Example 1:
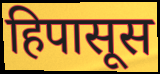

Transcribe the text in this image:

हिपासूस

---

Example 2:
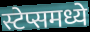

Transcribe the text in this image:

स्टेप्समध्ये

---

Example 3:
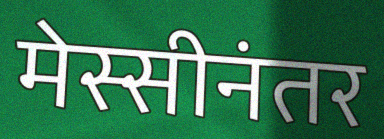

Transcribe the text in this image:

मेस्सीनंतर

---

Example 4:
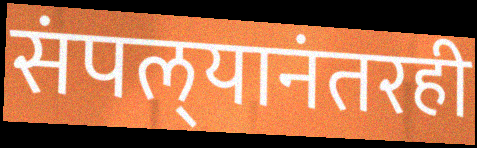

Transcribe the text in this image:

संपल्यानंतरही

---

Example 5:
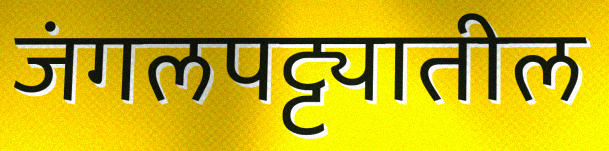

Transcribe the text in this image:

जंगलपट्ट्यातील